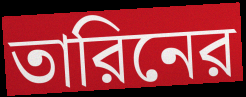
তারিনের